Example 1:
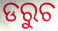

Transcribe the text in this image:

ଡରୁଚ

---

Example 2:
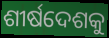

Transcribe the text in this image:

ଶୀର୍ଷଦେଶକୁ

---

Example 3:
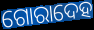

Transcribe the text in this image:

ଗୋରାଦେହ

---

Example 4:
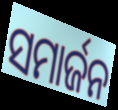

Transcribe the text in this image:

ସମାର୍ଜନ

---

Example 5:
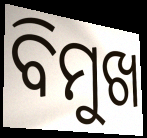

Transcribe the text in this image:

ବିମୁଖ